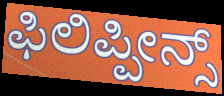
ಫಿಲಿಪ್ಪೀನ್ಸ್